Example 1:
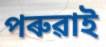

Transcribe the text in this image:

পৰুৱাই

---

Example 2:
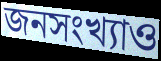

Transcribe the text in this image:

জনসংখ্যাও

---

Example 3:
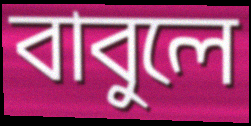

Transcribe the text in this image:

বাবুলে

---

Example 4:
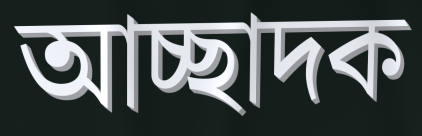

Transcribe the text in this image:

আচ্ছাদক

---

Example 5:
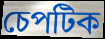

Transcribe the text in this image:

চেপটিক